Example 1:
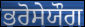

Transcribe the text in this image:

ਭਰੋਸੇਯੌਗ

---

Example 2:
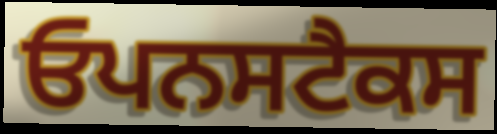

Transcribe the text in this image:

ਓਪਨਸਟੈਕਸ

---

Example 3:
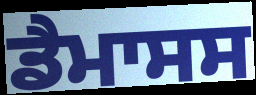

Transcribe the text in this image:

ਡੈਮਾਸਸ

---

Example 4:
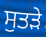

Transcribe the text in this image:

ਸੁਤੜੇ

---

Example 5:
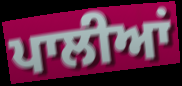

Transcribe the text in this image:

ਪਾਲੀਆਂ